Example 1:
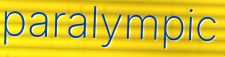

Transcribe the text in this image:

paralympic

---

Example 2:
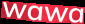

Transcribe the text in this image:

wawa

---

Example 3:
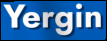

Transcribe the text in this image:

Yergin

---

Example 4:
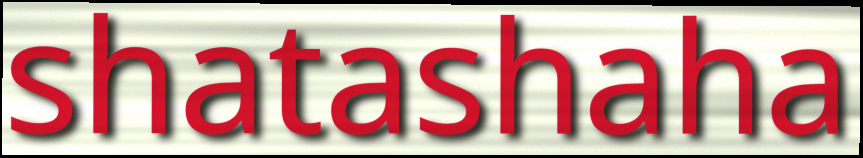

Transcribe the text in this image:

shatashaha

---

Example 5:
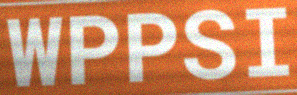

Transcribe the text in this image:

WPPSI